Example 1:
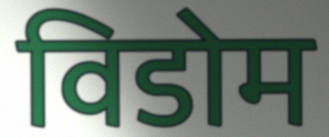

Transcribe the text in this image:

विडोम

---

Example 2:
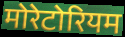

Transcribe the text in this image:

मोरेटोरियम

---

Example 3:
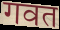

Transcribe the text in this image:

गवत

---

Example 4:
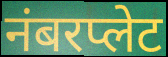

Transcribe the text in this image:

नंबरप्लेट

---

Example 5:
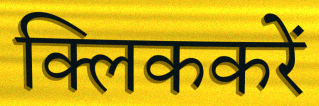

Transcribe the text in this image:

क्लिककरें